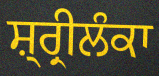
ਸ਼੍ਰ੍ਰੀਲੰਕਾ